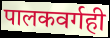
पालकवर्गही